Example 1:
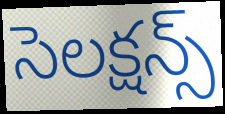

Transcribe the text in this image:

సెలక్షన్స్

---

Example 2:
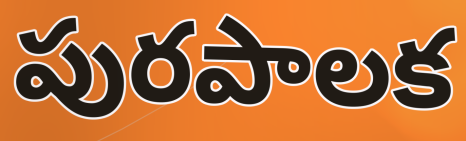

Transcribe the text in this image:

పురపాలక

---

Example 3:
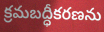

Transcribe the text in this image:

క్రమబద్ధీకరణను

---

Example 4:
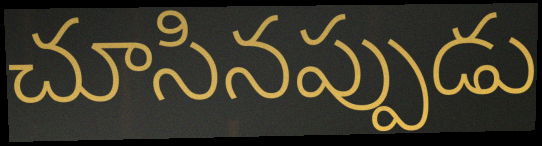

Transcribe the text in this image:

చూసినప్పుడు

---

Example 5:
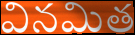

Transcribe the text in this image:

వినమిత